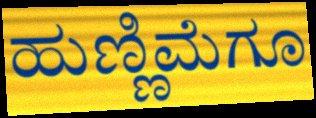
ಹುಣ್ಣಿಮೆಗೂ